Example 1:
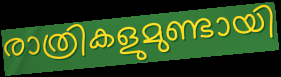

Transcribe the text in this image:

രാത്രികളുമുണ്ടായി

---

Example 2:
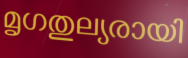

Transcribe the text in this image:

മൃഗതുല്യരായി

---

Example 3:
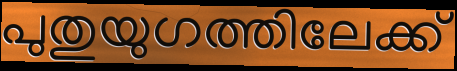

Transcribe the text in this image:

പുതുയുഗത്തിലേക്ക്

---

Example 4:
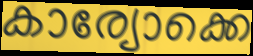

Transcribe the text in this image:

കാര്യോക്കെ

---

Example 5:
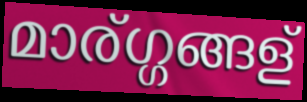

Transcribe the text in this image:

മാര്ഗ്ഗങ്ങള്